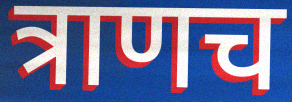
त्राणच